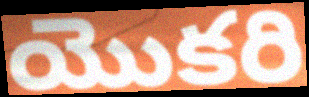
యొకరి